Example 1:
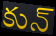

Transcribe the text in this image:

కున్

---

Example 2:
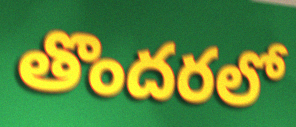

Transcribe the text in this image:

తొందరలో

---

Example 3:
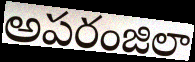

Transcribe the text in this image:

అపరంజిలా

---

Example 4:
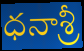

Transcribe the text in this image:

ధనాశ్రీ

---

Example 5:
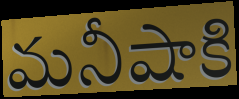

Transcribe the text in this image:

మనీషాకి